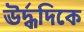
ঊর্দ্ধদিকে